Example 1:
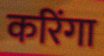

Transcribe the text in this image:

करिंगा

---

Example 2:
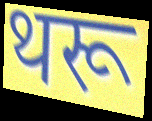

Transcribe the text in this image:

थरू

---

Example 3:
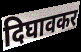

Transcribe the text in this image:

दिघावकर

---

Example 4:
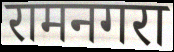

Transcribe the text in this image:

रामनगरा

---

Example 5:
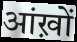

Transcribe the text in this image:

आंख़ों